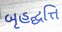
બૃહદ્ઘત્તિ